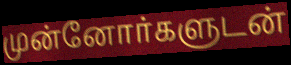
முன்னோர்களுடன்